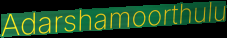
Adarshamoorthulu